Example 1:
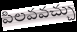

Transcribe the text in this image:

పిలవవచ్చు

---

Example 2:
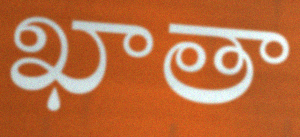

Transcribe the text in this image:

ఖాతా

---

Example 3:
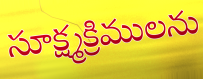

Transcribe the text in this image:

సూక్ష్మక్రిములను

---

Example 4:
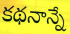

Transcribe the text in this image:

కథనాన్నే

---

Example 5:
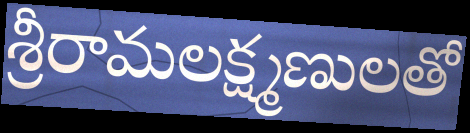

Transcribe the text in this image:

శ్రీరామలక్ష్మణులతో